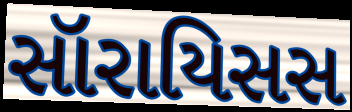
સૉરાયિસસ